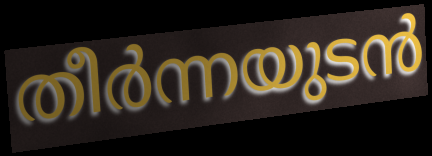
തീർന്നയുടൻ